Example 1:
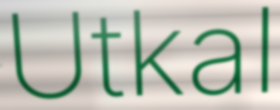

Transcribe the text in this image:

Utkal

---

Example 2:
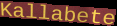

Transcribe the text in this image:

Kallabete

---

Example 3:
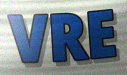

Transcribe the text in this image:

VRE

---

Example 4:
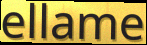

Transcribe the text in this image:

ellame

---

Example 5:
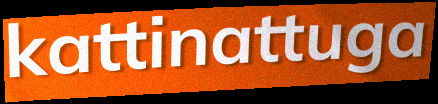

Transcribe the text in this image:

kattinattuga